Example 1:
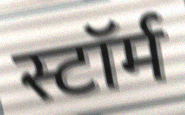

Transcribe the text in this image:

स्टॉर्म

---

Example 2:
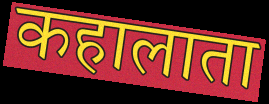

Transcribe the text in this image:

कहालाता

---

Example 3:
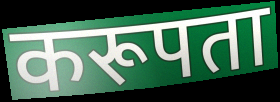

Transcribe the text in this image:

करूपता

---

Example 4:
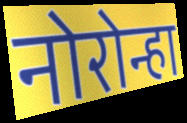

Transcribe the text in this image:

नोरोन्हा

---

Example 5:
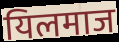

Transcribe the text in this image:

यिलमाज